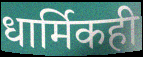
धार्मिकही